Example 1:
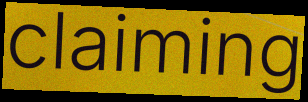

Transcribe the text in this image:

claiming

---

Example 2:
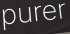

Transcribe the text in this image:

purer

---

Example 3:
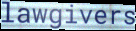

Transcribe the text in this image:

lawgivers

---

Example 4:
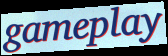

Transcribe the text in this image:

gameplay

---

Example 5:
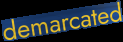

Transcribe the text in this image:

demarcated